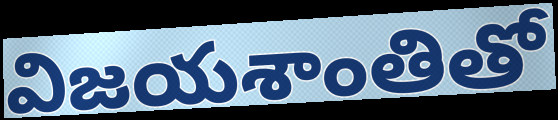
విజయశాంతితో